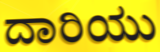
ದಾರಿಯು